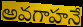
అవగాహనే